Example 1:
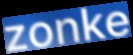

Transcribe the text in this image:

zonke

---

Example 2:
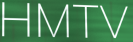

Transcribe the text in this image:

HMTV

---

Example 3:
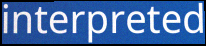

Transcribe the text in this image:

interpreted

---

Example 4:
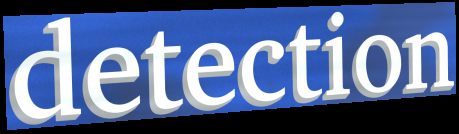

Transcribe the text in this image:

detection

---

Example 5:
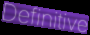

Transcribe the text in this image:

Definitive